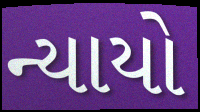
ન્યાયો